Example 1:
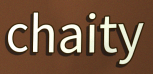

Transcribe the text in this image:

chaity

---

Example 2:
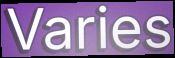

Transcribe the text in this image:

Varies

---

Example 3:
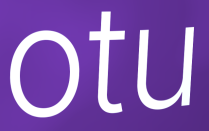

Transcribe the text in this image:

otu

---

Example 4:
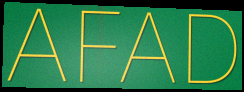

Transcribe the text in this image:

AFAD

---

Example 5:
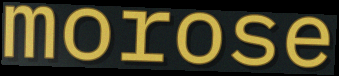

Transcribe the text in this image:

morose